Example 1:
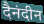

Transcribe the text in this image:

दैनंदीन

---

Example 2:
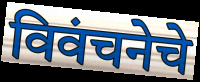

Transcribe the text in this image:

विवंचनेचे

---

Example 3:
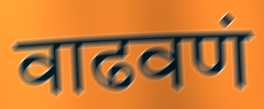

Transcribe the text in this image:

वाढवणं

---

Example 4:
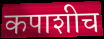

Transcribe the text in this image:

कपाशीच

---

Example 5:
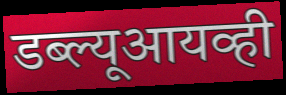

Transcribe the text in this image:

डब्ल्यूआयव्ही